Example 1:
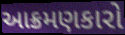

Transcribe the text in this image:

આક્રમણકારો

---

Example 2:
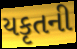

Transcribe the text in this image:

યકૃતની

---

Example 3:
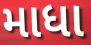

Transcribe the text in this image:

માધા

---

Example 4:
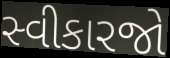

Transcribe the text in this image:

સ્વીકારજો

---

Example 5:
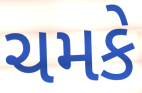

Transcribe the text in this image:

ચમકે